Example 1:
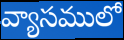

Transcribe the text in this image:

వ్యాసములో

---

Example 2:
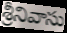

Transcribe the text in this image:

శ్రీనివాసు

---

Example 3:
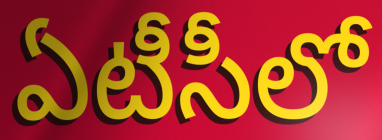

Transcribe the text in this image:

ఏటీసీలో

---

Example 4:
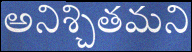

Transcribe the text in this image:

అనిశ్చితమని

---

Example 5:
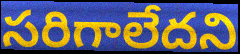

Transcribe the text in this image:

సరిగాలేదని